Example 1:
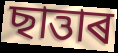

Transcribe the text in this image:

ছাত্তাৰ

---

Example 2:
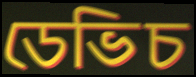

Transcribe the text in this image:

ডেভিচ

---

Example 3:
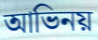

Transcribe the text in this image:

আভিনয়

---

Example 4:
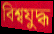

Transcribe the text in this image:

বিশ্বযুদ্ধ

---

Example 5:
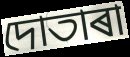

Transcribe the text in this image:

দোতাৰা